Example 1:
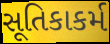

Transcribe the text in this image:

સૂતિકાકર્મ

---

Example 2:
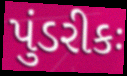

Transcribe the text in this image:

પુંડરીકઃ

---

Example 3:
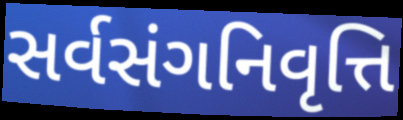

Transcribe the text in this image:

સર્વસંગનિવૃત્તિ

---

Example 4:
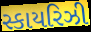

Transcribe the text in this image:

સ્કાયરિઝી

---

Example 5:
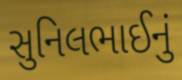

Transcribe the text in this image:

સુનિલભાઈનું